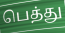
பெத்து